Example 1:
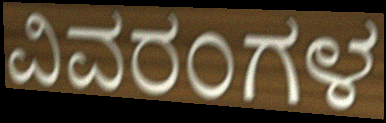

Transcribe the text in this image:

ವಿವರಂಗಳ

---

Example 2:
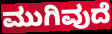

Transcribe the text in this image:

ಮುಗಿವುದೆ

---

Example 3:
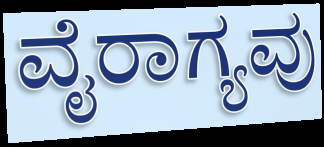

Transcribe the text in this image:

ವೈರಾಗ್ಯವು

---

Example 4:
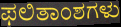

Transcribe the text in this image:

ಫಲಿತಾಂಶಗಳು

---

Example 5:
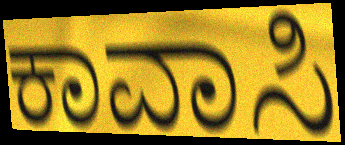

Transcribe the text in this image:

ಕಾವಾಸಿ